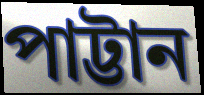
পাট্টান